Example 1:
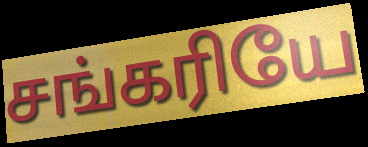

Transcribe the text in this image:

சங்கரியே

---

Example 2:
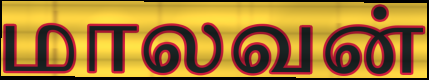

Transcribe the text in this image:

மாலவன்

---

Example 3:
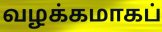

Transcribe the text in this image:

வழக்கமாகப்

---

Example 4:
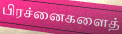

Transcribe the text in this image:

பிரச்னைகளைத்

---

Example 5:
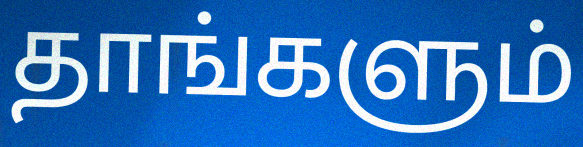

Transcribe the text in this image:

தாங்களும்